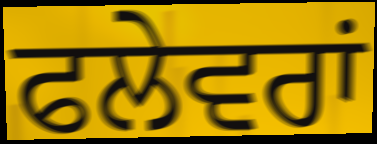
ਫਲੇਵਰਾਂ